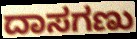
ದಾಸಗಣು